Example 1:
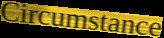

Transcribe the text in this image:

Circumstance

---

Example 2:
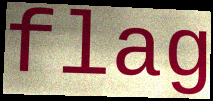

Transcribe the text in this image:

flag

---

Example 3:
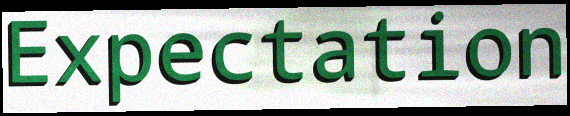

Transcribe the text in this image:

Expectation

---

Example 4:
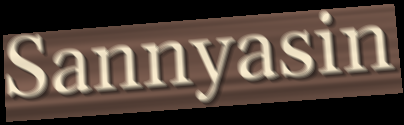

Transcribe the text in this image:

Sannyasin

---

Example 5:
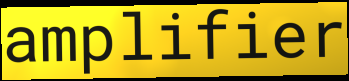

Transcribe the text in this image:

amplifier